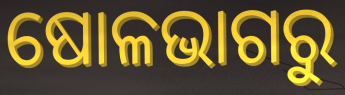
ଷୋଳଭାଗରୁ